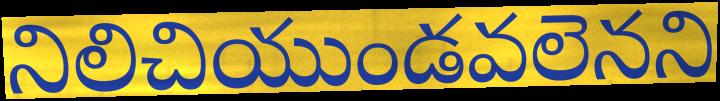
నిలిచియుండవలెనని